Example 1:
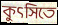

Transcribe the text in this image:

কুৎসিতে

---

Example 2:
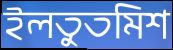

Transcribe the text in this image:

ইলতুতমিশ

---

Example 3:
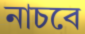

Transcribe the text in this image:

নাচবে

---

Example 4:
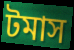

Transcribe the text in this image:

টমাস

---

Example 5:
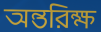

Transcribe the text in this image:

অন্তরিক্ষ